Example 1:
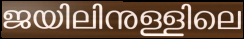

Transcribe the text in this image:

ജയിലിനുള്ളിലെ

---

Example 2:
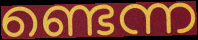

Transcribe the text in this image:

ണ്ടെന്ന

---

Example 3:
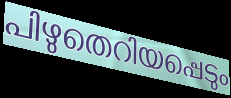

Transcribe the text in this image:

പിഴുതെറിയപ്പെടും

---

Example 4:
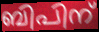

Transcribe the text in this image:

ബിപിന്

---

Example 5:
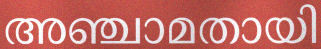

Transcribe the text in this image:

അഞ്ചാമതായി